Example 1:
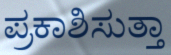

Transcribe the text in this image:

ಪ್ರಕಾಶಿಸುತ್ತಾ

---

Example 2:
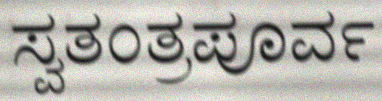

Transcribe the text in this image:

ಸ್ವತಂತ್ರಪೂರ್ವ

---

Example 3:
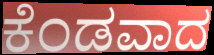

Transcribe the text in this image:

ಕೆಂಡವಾದ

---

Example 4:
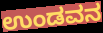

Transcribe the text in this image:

ಉಂಡವನ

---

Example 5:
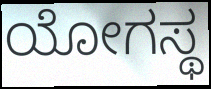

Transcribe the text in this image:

ಯೋಗಸ್ಥ